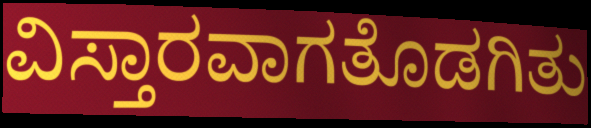
ವಿಸ್ತಾರವಾಗತೊಡಗಿತು